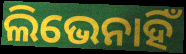
ଲିଭେନାହିଁ